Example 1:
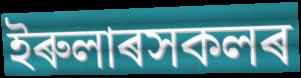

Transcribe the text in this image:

ইৰুলাৰসকলৰ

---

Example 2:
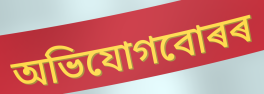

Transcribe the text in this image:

অভিযোগবোৰৰ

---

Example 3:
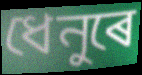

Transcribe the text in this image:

ধেনুৰে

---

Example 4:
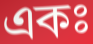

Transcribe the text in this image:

একঃ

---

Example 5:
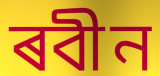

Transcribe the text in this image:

ৰবীন